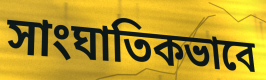
সাংঘাতিকভাবে